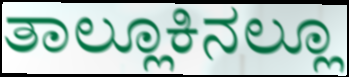
ತಾಲ್ಲೂಕಿನಲ್ಲೂ